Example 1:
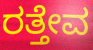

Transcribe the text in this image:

ರತ್ತೇವ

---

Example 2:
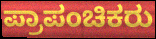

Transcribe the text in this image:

ಪ್ರಾಪಂಚಿಕರು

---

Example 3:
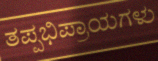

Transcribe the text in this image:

ತಪ್ಪಭಿಪ್ರಾಯಗಳು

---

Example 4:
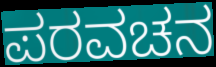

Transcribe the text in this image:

ಪರವಚನ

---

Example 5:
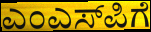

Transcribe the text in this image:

ಎಂಎಸ್‌ಪಿಗೆ